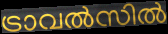
ട്രാവൽസിൽ